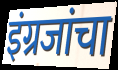
इंग्रजांचा